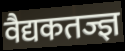
वैद्यकतज्ज्ञ